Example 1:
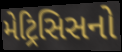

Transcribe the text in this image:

મેટ્રિસિસનો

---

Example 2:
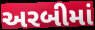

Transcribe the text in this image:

અરબીમાં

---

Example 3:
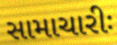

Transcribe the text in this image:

સામાચારીઃ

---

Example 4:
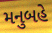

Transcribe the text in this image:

મનુબહે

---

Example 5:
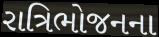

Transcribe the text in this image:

રાત્રિભોજનના